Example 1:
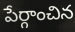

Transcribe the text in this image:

పేర్గాంచిన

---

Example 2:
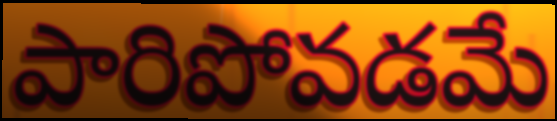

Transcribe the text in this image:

పారిపోవడమే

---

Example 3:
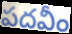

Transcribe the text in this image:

పదవీం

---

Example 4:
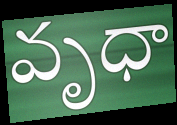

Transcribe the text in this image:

వృధా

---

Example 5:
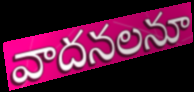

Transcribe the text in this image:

వాదనలనూ